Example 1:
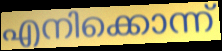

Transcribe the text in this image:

എനിക്കൊന്ന്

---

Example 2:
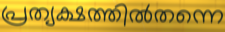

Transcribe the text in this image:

പ്രത്യക്ഷത്തിൽതന്നെ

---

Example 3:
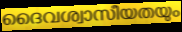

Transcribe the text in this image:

ദൈവശ്വാസീയതയും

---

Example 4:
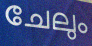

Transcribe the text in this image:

ചേലും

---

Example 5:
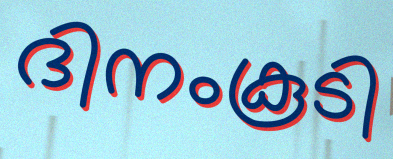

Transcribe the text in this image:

ദിനംകൂടി